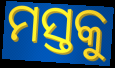
ମସ୍ତକୁ